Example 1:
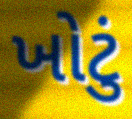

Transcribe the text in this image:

ખોટું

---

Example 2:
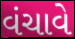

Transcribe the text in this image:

વંચાવે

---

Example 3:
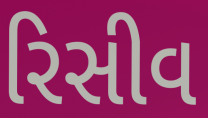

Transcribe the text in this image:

રિસીવ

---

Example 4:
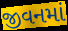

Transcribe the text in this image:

જીવનમાં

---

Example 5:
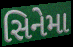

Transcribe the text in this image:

સિનેમા